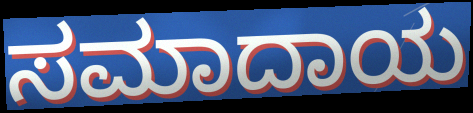
ಸಮಾದಾಯ